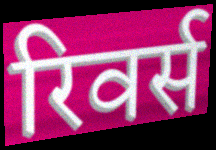
रिवर्स